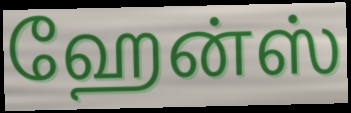
ஹேன்ஸ்